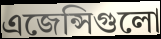
এজেন্সিগুলো